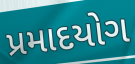
પ્રમાદયોગ